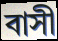
বাসী